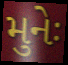
મુનેઃ